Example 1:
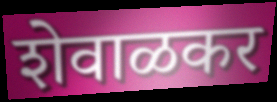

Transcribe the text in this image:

शेवाळकर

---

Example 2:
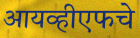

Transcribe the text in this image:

आयव्हीएफचे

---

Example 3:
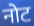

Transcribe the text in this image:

नोट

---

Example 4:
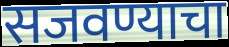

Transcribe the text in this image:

सजवण्याचा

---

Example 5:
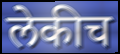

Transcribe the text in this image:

लेकीच